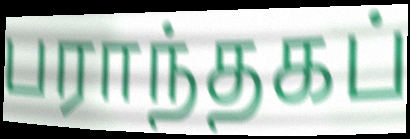
பராந்தகப்